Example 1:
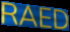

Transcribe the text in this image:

RAED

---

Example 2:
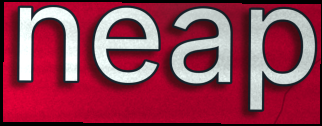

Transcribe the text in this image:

neap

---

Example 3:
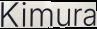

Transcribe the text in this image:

Kimura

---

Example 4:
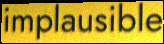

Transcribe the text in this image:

implausible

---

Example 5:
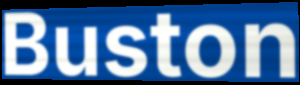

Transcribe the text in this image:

Buston